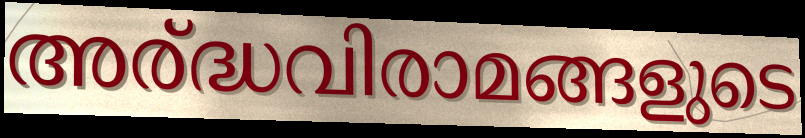
അര്ദ്ധവിരാമങ്ങളുടെ